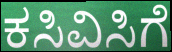
ಕಸಿವಿಸಿಗೆ